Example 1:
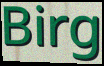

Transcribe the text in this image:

Birg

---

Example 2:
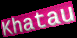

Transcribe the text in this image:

Khatau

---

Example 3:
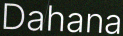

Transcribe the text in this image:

Dahana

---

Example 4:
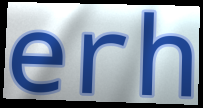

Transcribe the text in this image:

erh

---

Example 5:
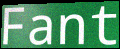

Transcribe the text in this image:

Fant